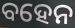
ବହେନ